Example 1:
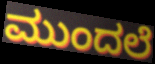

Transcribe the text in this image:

ಮುಂದಲೆ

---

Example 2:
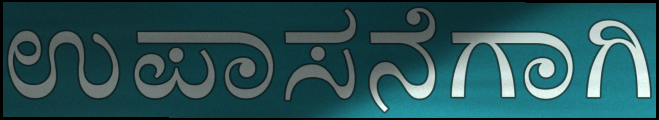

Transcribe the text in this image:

ಉಪಾಸನೆಗಾಗಿ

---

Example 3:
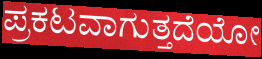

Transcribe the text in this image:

ಪ್ರಕಟವಾಗುತ್ತದೆಯೋ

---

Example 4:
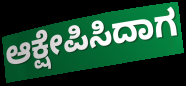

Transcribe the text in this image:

ಆಕ್ಷೇಪಿಸಿದಾಗ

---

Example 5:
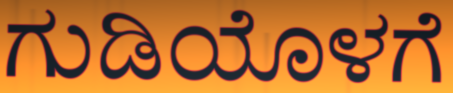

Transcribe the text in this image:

ಗುಡಿಯೊಳಗೆ